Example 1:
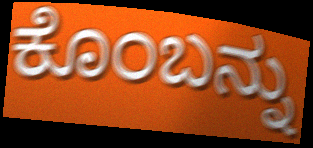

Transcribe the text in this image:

ಕೊಂಬನ್ನು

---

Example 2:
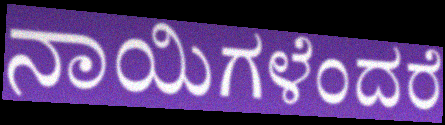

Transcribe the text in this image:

ನಾಯಿಗಳೆಂದರೆ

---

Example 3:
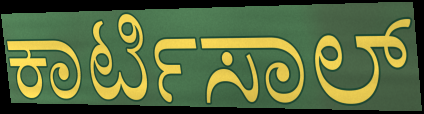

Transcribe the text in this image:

ಕಾರ್ಟಿಸಾಲ್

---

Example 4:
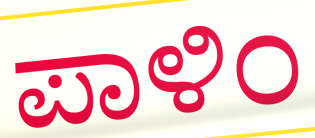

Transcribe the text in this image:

ಪಾಳಿಂ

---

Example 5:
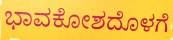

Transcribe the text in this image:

ಭಾವಕೋಶದೊಳಗೆ